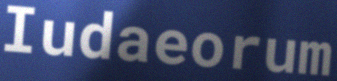
Iudaeorum